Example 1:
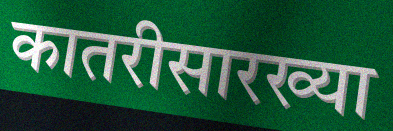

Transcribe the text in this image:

कातरीसारख्या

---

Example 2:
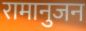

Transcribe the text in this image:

रामानुजन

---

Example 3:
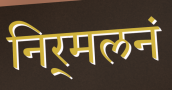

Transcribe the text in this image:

निर्मलनं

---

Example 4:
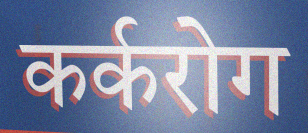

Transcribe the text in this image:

कर्करोग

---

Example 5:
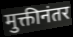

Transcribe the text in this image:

मुक्तीनंतर